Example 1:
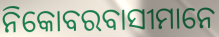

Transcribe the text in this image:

ନିକୋବରବାସୀମାନେ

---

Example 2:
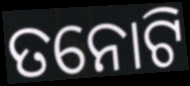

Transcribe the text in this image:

ତନୋଟି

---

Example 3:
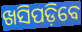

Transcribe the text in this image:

ଖସିପଡ଼ିବେ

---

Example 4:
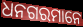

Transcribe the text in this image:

ଧନଗରମାନେ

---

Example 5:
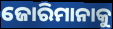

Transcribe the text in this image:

ଜୋରିମାନାକୁ